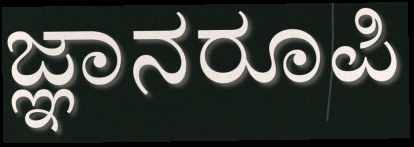
ಜ್ಞಾನರೂಪಿ